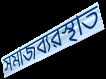
সমাজব্যৱস্থাত